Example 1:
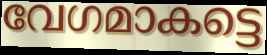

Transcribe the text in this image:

വേഗമാകട്ടെ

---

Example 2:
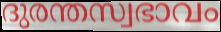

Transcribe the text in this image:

ദുരന്തസ്വഭാവം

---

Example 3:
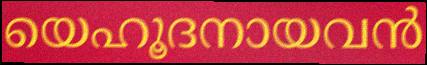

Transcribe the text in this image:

യെഹൂദനായവൻ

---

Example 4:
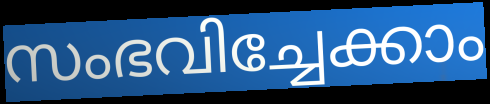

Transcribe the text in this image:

സംഭവിച്ചേക്കാം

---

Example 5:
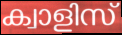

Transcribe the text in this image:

ക്വാളിസ്